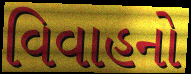
વિવાહનો